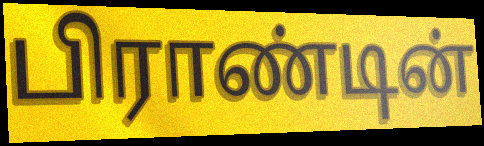
பிராண்டின்